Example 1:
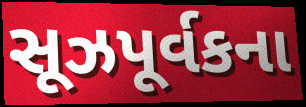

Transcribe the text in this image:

સૂઝપૂર્વકના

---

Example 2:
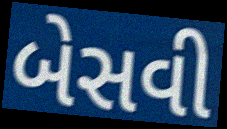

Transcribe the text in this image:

બેસવી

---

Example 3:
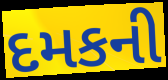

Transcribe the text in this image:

દમકની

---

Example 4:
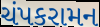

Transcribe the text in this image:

ચંપકરામન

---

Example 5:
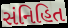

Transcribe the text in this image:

સંનિહિત